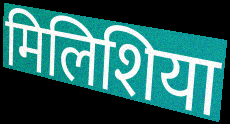
मिलिशिया